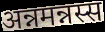
अन्नमन्नस्स